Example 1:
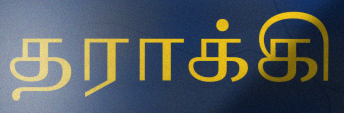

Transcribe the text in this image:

தராக்கி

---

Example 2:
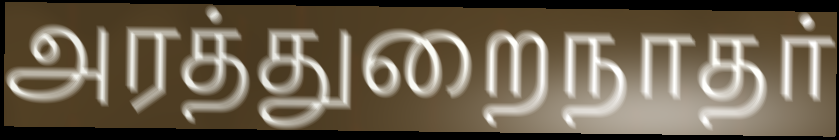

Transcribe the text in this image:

அரத்துறைநாதர்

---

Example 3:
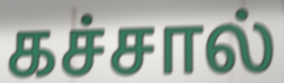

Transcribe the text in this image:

கச்சால்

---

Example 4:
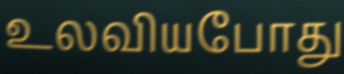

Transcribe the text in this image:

உலவியபோது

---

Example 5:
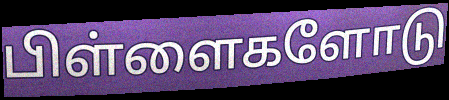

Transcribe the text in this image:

பிள்ளைகளோடு